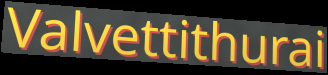
Valvettithurai